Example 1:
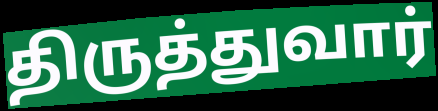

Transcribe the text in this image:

திருத்துவார்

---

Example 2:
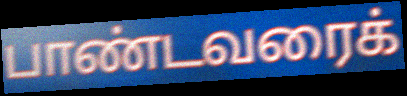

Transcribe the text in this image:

பாண்டவரைக்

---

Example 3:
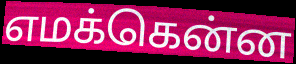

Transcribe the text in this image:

எமக்கென்ன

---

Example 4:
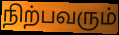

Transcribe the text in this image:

நிற்பவரும்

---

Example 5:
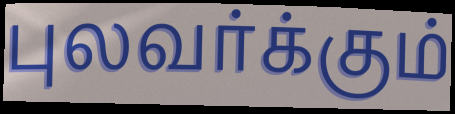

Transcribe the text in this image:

புலவர்க்கும்